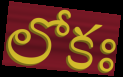
లోకః